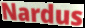
Nardus